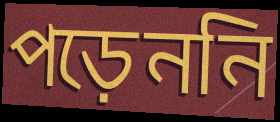
পড়েননি